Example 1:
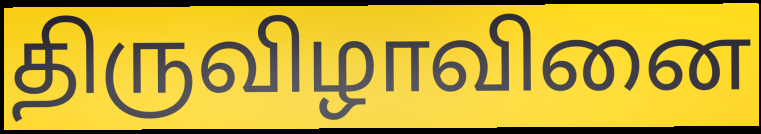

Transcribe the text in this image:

திருவிழாவினை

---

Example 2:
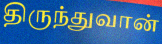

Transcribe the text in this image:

திருந்துவான்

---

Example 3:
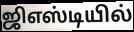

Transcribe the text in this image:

ஜிஎஸ்டியில்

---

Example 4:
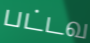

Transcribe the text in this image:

பட்டவ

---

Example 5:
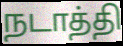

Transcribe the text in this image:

நடாத்தி